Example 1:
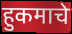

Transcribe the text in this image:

हुकमाचे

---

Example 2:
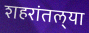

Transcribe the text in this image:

शहरांतल्या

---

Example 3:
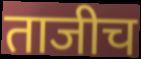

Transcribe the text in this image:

ताजीच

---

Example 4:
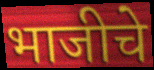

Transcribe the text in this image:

भाजीचे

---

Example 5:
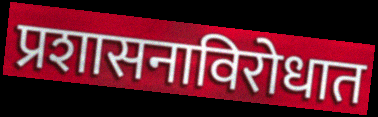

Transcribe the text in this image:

प्रशासनाविरोधात